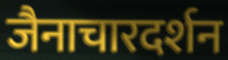
जैनाचारदर्शन